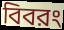
বিবরং